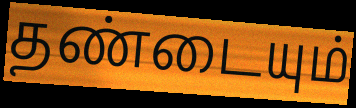
தண்டையும்